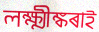
লক্ষ্মীঙ্কৰাই